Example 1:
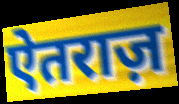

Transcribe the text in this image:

ऐतराज़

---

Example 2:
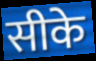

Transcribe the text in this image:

सीके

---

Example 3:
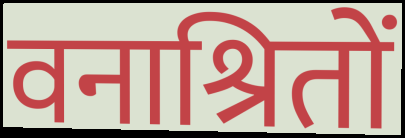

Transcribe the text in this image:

वनाश्रितों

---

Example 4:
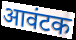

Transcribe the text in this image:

आवंटक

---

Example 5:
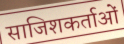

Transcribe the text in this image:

साजिशकर्ताओं